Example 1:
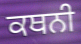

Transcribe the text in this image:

ਕਥਨੀ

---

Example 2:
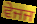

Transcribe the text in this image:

ਵੇਜਜ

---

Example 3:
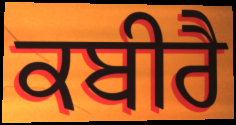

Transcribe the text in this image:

ਕਬੀਰੈ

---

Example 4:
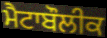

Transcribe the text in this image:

ਮੈਟਾਬੌਲੀਕ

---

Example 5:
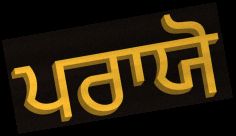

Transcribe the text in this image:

ਪਰਾਯੋ